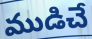
ముడిచే